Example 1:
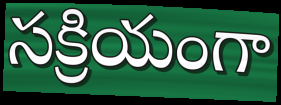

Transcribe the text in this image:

సక్రియంగా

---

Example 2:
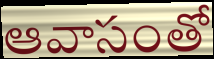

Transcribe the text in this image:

ఆవాసంతో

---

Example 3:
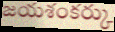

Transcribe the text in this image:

జయశంకర్కు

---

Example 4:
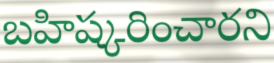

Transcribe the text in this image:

బహిష్కరించారని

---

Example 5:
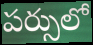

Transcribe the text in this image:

పర్సులో